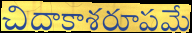
చిదాకాశరూపమే